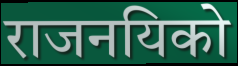
राजनयिको